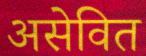
असेवित